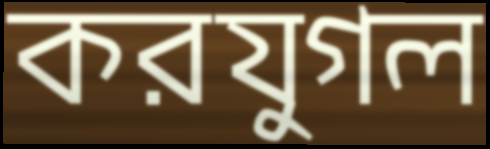
করযুগল